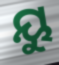
ୟୁ